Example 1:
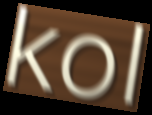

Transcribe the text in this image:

kol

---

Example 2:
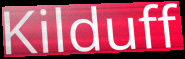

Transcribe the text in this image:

Kilduff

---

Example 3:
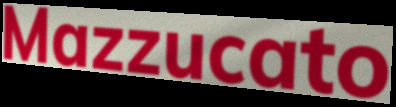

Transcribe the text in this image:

Mazzucato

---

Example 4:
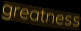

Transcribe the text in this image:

greatness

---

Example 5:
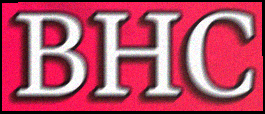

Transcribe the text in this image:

BHC